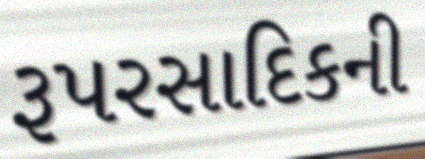
રૂપરસાદિકની